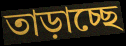
তাড়াচ্ছে